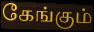
கேங்கும்